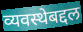
व्यवस्थेबद्दल